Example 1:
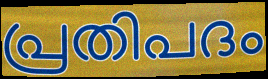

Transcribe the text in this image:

പ്രതിപദം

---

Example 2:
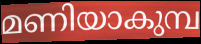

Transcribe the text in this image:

മണിയാകുമ്പ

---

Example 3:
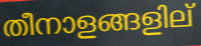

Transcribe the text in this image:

തീനാളങ്ങളില്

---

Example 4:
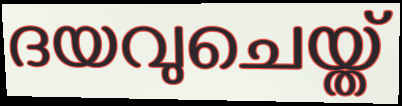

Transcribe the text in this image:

ദയവുചെയ്ത്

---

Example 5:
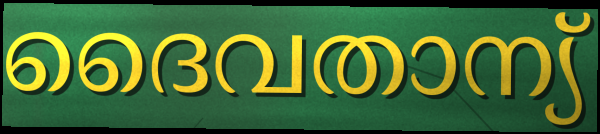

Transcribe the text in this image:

ദൈവതാന്യ്